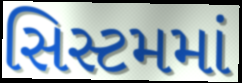
સિસ્ટમમાં